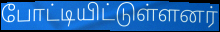
போட்டியிட்டுள்ளனர்